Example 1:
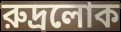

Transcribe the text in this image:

রুদ্রলোক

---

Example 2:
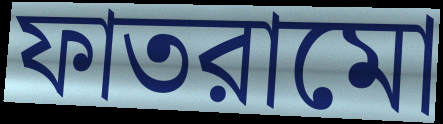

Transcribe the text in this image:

ফাতরামো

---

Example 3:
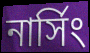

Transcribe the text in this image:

নার্সিং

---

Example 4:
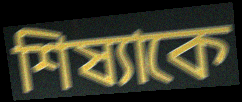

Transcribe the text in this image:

শিষ্যাকে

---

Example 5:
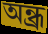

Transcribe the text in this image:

অন্ধ্র